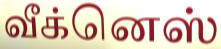
வீக்னெஸ்